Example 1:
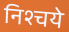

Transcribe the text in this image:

निश्चये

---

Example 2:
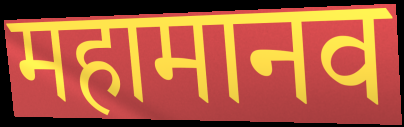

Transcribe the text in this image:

महामानव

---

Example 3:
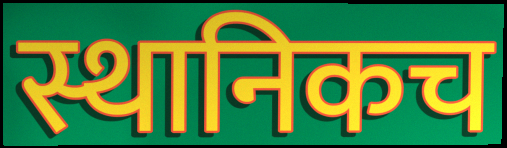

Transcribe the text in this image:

स्थानिकच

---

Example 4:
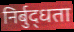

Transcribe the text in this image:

निर्बुद्धता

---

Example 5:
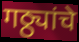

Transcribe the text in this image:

गठ्ठ्यांचे